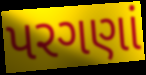
પરગણાં